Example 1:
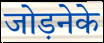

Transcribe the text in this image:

जोड़नेके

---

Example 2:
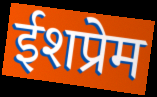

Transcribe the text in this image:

ईशप्रेम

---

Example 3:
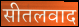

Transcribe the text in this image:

सीतलवाद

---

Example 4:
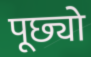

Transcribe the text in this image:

पूछ्यो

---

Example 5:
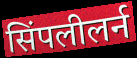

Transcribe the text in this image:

सिंपलीलर्न